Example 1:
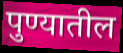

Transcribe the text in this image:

पुण्यातील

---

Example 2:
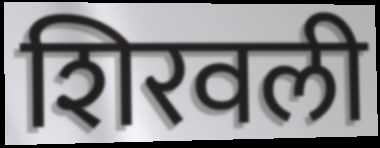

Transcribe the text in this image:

शिरवली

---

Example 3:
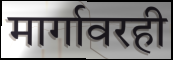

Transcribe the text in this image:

मार्गावरही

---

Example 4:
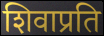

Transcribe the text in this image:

शिवाप्रति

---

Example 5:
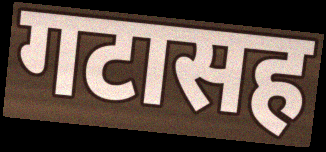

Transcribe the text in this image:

गटासह